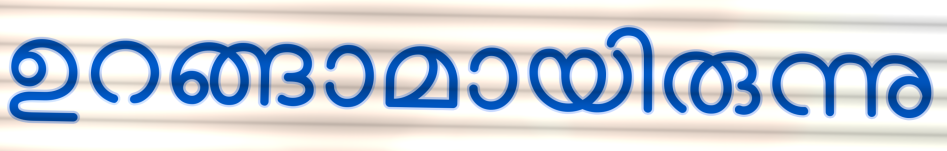
ഉറങ്ങാമായിരുന്നു